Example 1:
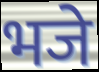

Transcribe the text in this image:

भजे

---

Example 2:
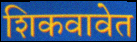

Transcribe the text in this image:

शिकवावेत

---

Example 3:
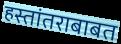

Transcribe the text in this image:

हस्तांतराबाबत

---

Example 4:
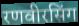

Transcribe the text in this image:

रणवीरसिंग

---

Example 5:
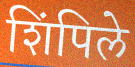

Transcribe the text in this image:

शिंपिले